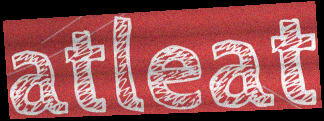
atleat